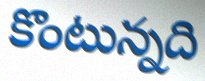
కొంటున్నది